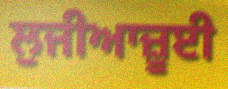
ਲੁਜੀਆਜ਼ੂਈ